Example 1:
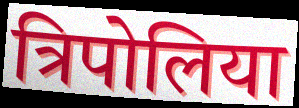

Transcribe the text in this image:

त्रिपोलिया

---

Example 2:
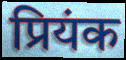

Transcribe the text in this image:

प्रियंक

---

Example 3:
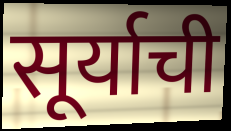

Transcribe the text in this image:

सूर्याची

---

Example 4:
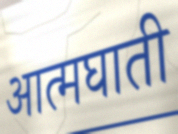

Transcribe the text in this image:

आत्मघाती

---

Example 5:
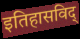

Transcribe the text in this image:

इतिहासविद्